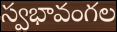
స్వభావంగల